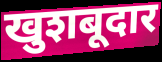
खुशबूदार